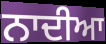
ਨਾਦੀਆ